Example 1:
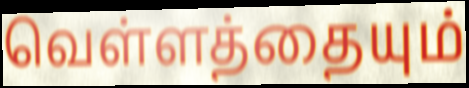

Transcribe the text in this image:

வெள்ளத்தையும்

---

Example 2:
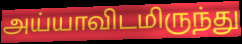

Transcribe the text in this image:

அய்யாவிடமிருந்து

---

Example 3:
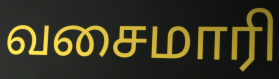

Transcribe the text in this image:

வசைமாரி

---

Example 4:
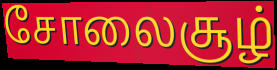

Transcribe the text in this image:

சோலைசூழ்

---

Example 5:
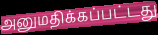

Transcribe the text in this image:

அனுமதிக்கப்பட்டது